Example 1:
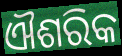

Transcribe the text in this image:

ଐଶରିକ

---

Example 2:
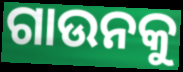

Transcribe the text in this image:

ଗାଉନକୁ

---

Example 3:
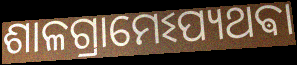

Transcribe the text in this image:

ଶାଳଗ୍ରାମେଽପ୍ଯଥଵା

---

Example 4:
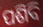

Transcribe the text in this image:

ପଶିବି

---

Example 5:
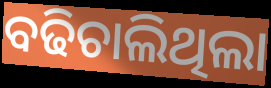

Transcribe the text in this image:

ବଢିଚାଲିଥିଲା